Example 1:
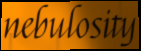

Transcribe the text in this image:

nebulosity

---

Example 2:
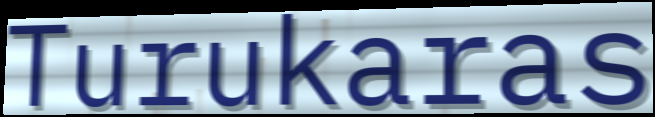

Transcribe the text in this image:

Turukaras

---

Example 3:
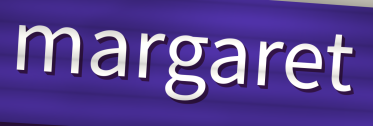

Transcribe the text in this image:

margaret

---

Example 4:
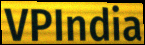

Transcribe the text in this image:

VPIndia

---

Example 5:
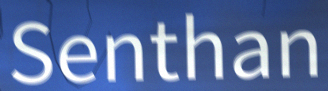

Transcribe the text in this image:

Senthan